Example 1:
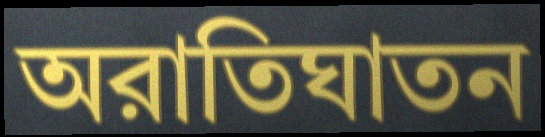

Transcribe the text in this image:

অরাতিঘাতন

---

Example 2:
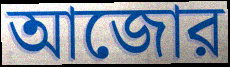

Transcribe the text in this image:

আজোর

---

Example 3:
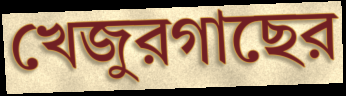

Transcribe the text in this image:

খেজুরগাছের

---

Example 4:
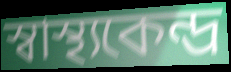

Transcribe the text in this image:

স্বাস্থ্যকেন্দ্র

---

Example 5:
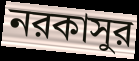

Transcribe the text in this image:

নরকাসুর